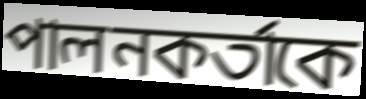
পালনকর্তাকে